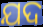
ଯଦ